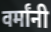
वर्मांनी